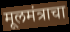
मूलमंत्राचा